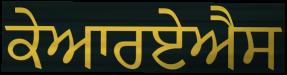
ਕੇਆਰਏਐਸ